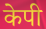
केपी